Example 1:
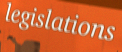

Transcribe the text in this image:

legislations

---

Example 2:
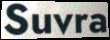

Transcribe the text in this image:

Suvra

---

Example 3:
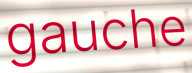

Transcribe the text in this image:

gauche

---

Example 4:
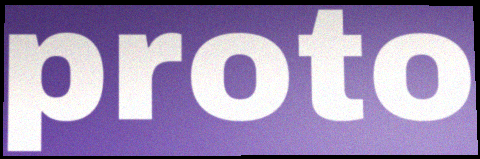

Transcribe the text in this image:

proto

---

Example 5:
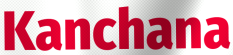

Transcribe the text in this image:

Kanchana